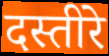
दस्तीरे